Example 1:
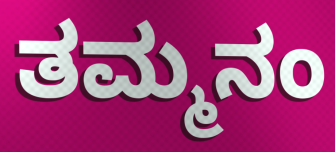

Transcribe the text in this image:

ತಮ್ಮನಂ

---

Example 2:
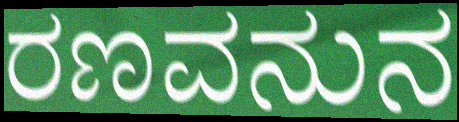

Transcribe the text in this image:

ರಣವನುನ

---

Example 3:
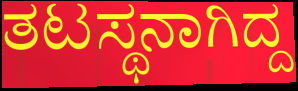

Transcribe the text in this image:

ತಟಸ್ಥನಾಗಿದ್ದ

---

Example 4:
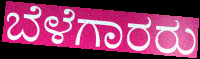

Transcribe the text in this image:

ಬೆಳೆಗಾರರು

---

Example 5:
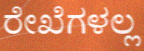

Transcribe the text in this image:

ರೇಖೆಗಳಲ್ಲ